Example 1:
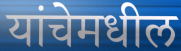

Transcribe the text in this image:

यांचेमधील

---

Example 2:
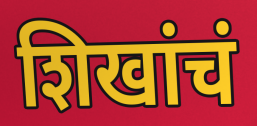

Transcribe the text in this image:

शिखांचं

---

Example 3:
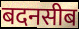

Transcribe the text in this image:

बदनसीब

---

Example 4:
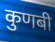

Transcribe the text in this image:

कुणबी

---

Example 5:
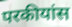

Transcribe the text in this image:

परकीयांस